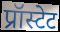
प्रॉस्टेट